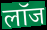
लॉज